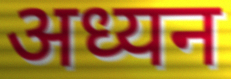
अध्यन